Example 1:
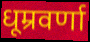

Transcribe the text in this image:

धूम्रवर्णा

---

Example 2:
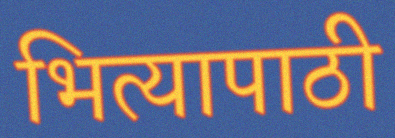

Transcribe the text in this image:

भित्यापाठी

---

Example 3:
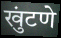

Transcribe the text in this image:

खुंटणे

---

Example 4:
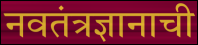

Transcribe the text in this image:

नवतंत्रज्ञानाची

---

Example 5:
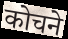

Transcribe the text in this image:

कोचने